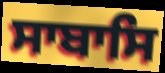
ਸਾਬਾਸਿ